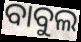
ବାବୁଲ